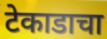
टेकाडाचा